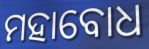
ମହାବୋଧ